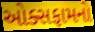
ઓક્સફામનો